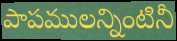
పాపములన్నింటినీ